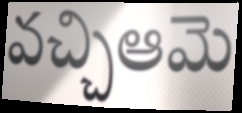
వచ్చిఆమె